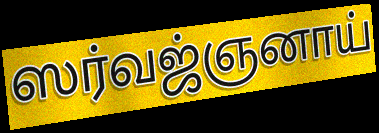
ஸர்வஜ்ஞனாய்